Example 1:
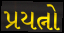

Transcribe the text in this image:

પ્રયત્નો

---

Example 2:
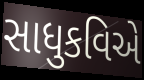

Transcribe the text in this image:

સાધુકવિએ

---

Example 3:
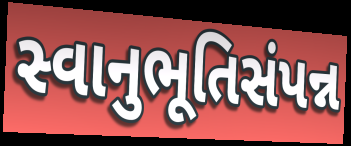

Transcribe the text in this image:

સ્વાનુભૂતિસંપન્ન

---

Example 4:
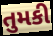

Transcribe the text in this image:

તુમકી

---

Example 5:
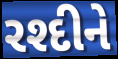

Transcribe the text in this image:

રશ્દીને